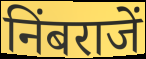
निंबराजें